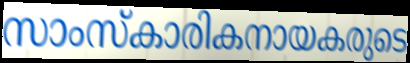
സാംസ്കാരികനായകരുടെ